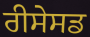
ਰੀਸੇਸਡ